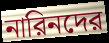
নারিনদের